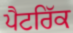
ਪੈਟਰਿੱਕ